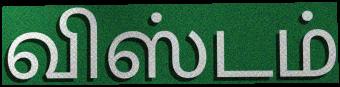
விஸ்டம்